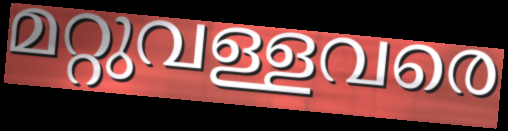
മറ്റുവള്ളവരെ